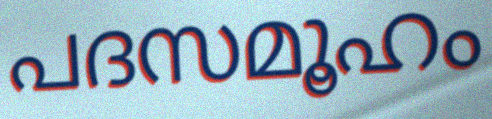
പദസമൂഹം